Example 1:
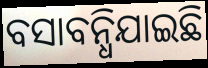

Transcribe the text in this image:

ବସାବନ୍ଧିଯାଇଛି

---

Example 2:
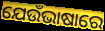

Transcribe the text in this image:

ଯେଉଁଭାଷାରେ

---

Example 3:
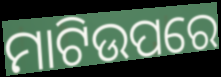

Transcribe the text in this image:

ମାଟିଉପରେ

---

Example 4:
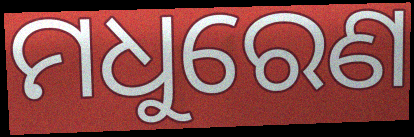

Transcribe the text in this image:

ମଧୁରେଣ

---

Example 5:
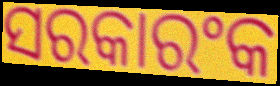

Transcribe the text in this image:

ସରକାରଂକ